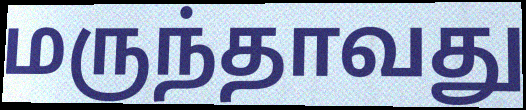
மருந்தாவது